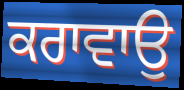
ਕਰਾਵਾਉ